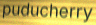
puducherry